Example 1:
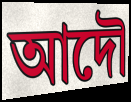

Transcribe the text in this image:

আদৌ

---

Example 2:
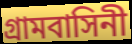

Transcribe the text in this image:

গ্রামবাসিনী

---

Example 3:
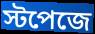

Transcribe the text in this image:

স্টপেজে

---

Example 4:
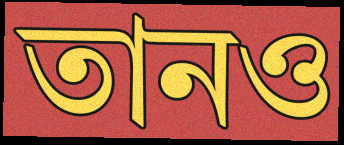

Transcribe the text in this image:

তানও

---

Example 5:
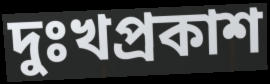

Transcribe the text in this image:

দুঃখপ্রকাশ